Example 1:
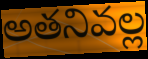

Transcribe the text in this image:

అతనివల్ల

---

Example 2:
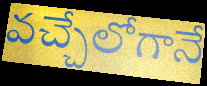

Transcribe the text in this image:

వచ్చేలోగానే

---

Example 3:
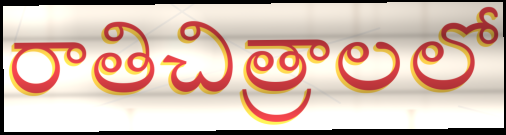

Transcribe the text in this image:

రాతిచిత్రాలలో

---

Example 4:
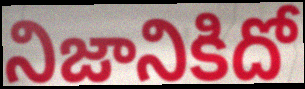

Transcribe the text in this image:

నిజానికిదో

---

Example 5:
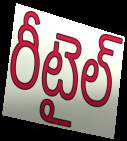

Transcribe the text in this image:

రీటైల్